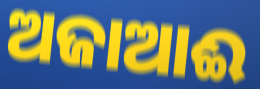
ଅଜାଆଈ